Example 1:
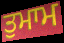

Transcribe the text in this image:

ਤੁਮਾਮ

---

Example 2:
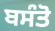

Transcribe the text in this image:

ਬਸੰਤੋ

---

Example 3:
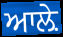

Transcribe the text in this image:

ਆਲ਼ੇ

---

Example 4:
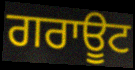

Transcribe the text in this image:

ਗਰਾਊਟ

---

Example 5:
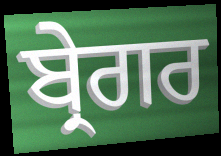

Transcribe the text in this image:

ਬ੍ਰੇਗਰ